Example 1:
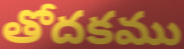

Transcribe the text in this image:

తోదకము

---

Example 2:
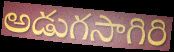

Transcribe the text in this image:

అడుగసాగిరి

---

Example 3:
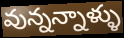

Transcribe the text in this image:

వున్నన్నాళ్ళు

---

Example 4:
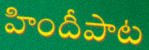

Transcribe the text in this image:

హిందీపాట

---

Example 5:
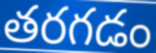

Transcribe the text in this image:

తరగడం